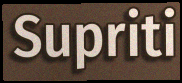
Supriti